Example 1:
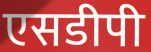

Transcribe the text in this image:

एसडीपी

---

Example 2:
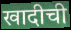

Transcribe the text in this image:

खादीची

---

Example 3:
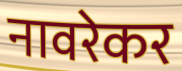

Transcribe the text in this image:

नावरेकर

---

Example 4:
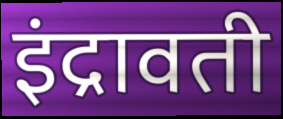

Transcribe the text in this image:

इंद्रावती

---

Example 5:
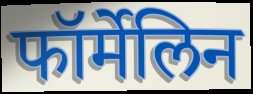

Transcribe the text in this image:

फॉर्मेलिन